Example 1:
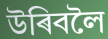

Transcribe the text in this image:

উৰিবলৈ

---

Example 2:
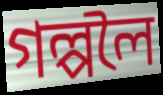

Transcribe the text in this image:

গল্পলৈ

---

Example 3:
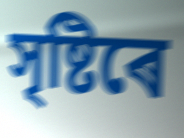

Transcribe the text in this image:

সৃষ্টিৰে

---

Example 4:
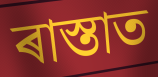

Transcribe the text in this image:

ৰাস্তাত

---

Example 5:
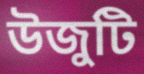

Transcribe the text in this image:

উজুটি